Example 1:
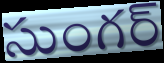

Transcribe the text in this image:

సుంగర్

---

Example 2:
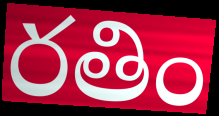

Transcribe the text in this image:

రతిం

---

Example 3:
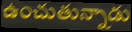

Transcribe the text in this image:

ఉంచుతున్నాడు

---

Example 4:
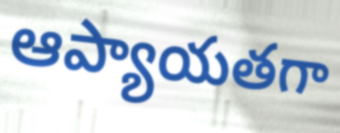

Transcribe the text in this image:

ఆప్యాయతగా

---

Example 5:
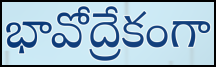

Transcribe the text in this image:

భావోద్రేకంగా